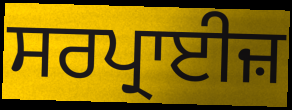
ਸਰਪ੍ਰਾਈਜ਼